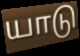
யாடு